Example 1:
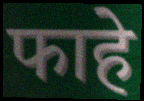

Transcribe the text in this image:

फाहे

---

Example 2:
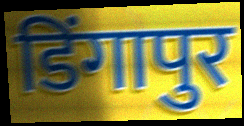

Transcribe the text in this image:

डिंगापुर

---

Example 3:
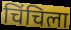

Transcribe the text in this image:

चिंचिला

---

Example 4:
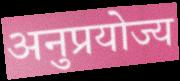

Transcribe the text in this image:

अनुप्रयोज्य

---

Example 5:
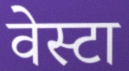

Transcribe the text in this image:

वेस्टा